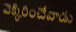
వెక్కిరించేవాడు